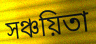
সঞ্চয়িতা